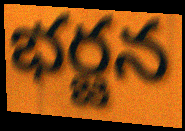
భర్జన